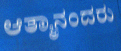
ಆತ್ಮಾನಂದರು